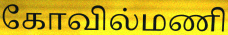
கோவில்மணி